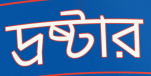
দ্রষ্টার